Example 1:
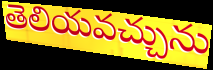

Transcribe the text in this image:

తెలియవచ్చును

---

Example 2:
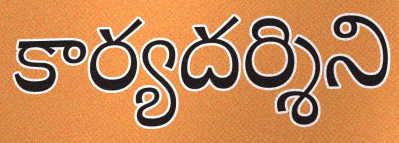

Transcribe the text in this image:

కార్యదర్శిని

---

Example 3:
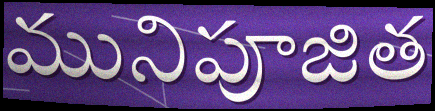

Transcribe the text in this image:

మునిపూజిత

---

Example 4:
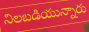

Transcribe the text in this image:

నిలబడియున్నారు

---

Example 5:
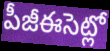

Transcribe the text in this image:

పీజీఈసెట్లో